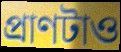
প্রাণটাও